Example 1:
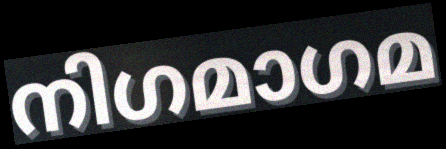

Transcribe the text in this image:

നിഗമാഗമ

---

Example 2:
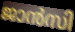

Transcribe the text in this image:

ജാൻസി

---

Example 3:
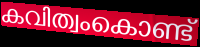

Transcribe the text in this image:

കവിത്വംകൊണ്ട്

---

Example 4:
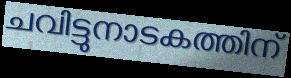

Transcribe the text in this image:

ചവിട്ടുനാടകത്തിന്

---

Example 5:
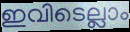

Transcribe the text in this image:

ഇവിടെല്ലാം